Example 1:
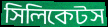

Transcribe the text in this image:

সিলিকেটস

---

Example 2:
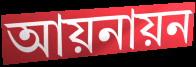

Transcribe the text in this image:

আয়নায়ন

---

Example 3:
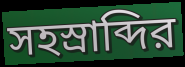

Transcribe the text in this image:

সহস্রাব্দির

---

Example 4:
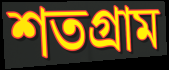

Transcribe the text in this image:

শতগ্রাম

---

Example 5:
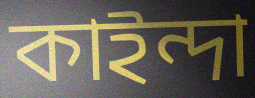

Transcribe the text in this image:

কাইন্দা